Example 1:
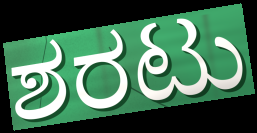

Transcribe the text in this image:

ಶರಟು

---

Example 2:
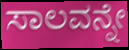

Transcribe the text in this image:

ಸಾಲವನ್ನೇ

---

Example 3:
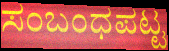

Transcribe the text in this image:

ಸಂಬಂಧಪಟ್ಟ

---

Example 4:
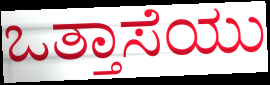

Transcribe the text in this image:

ಒತ್ತಾಸೆಯು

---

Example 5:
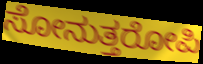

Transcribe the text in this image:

ಸೋನುತ್ತರೋಪಿ